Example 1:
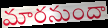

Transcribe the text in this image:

మారనుందా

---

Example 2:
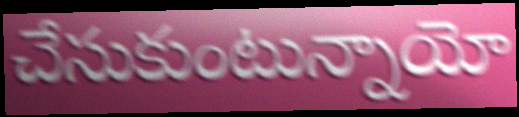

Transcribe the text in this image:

చేసుకుంటున్నాయో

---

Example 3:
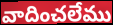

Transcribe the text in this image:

వాదించలేము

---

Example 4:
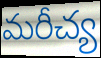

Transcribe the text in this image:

మరీచ్య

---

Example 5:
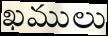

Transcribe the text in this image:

ఖములు